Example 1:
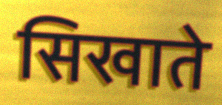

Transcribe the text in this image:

सिखाते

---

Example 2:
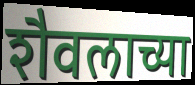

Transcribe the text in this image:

शैवलाच्या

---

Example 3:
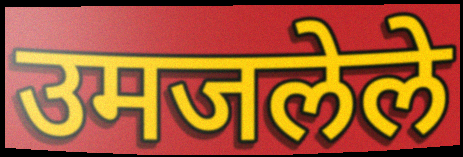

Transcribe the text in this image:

उमजलेले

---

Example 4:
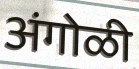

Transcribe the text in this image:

अंगोळी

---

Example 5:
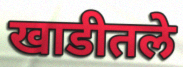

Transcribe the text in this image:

खाडीतले